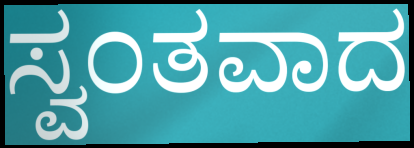
ಸ್ವಂತವಾದ